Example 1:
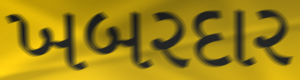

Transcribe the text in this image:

ખબરદાર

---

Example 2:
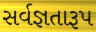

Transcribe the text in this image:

સર્વજ્ઞતારૂપ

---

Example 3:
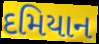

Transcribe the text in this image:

દમિયાન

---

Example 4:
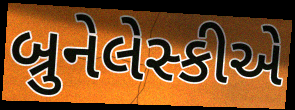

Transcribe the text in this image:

બ્રુનેલેસ્કીએ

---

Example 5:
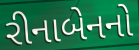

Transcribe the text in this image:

રીનાબેનનો